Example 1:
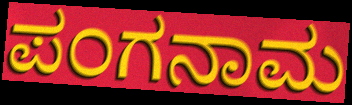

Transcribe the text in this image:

ಪಂಗನಾಮ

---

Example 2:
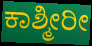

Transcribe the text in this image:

ಕಾಶ್ಮೀರೀ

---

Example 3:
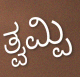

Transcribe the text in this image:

ತ್ವಮ್ಪಿ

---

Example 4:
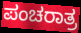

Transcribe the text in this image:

ಪಂಚರಾತ್ರ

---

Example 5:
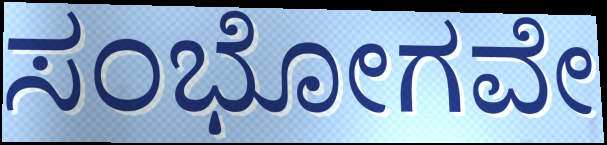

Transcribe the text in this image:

ಸಂಭೋಗವೇ